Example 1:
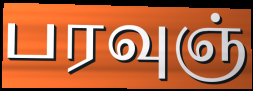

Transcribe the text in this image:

பரவுஞ்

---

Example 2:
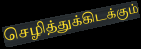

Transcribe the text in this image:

செழித்துக்கிடக்கும்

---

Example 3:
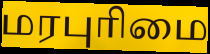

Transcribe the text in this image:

மரபுரிமை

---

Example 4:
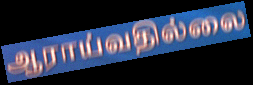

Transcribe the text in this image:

ஆராய்வதில்லை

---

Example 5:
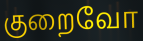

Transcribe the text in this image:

குறைவோ